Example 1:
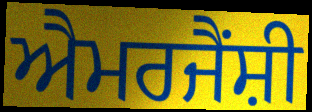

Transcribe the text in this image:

ਐਮਰਜੈਂਸ਼ੀ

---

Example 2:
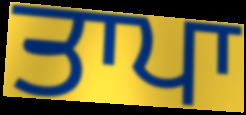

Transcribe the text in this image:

ਤਾਪਾ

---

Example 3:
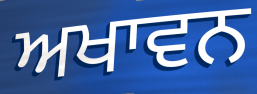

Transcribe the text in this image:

ਅਖਾਵਨ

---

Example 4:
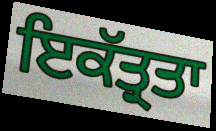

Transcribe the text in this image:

ਇਕੱਤ੍ਰਤਾ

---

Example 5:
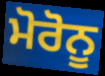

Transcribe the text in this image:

ਮੋਰੋਨੂ